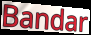
Bandar